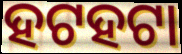
ହଟହଟା